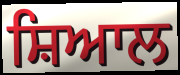
ਸ਼ਿਆਲ